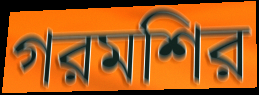
গরমশির